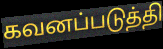
கவனப்படுத்தி